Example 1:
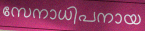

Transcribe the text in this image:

സേനാധിപനായ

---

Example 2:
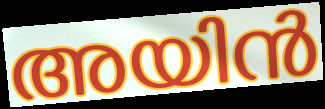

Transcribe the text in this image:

അയിൻ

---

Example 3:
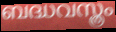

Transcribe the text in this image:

ബദ്ധവസ്ത്രം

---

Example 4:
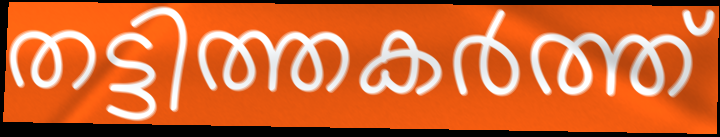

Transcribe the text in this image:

തട്ടിത്തകർത്ത്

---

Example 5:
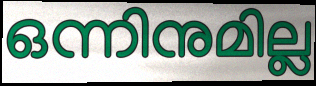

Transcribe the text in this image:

ഒന്നിനുമില്ല